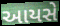
આયસે